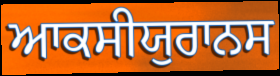
ਆਕਸੀਯੁਰਾਨਸ